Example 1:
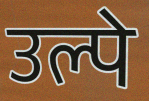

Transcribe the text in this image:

उल्पे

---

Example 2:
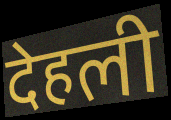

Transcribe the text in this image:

देहली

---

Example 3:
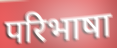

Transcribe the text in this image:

परिभाषा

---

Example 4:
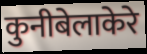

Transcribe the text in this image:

कुनीबेलाकेरे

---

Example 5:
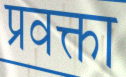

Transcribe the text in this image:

प्रवक्ता